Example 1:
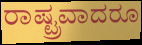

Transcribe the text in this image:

ರಾಷ್ಟ್ರವಾದರೂ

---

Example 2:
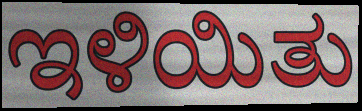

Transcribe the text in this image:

ಇಳಿಯಿತು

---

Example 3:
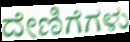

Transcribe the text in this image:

ದೇಣಿಗೆಗಳು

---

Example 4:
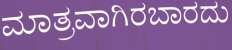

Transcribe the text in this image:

ಮಾತ್ರವಾಗಿರಬಾರದು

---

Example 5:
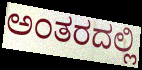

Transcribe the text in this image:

ಅಂತರದಲ್ಲಿ